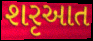
શરૃઆત